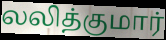
லலித்குமார்